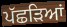
ਪੱਛੜਿਆਂ